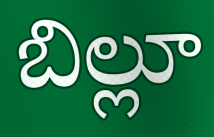
బిల్లూ